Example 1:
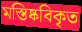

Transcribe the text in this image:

মস্তিষ্কবিকৃত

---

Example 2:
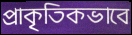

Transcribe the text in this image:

প্রাকৃতিকভাবে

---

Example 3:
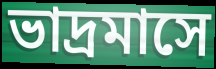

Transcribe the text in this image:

ভাদ্রমাসে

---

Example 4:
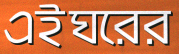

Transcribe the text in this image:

এইঘরের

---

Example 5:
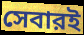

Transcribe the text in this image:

সেবারই